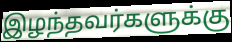
இழந்தவர்களுக்கு